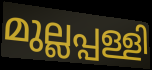
മുല്ലപ്പള്ളി